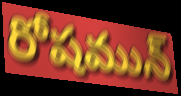
రోషమున్